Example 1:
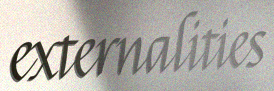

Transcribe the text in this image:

externalities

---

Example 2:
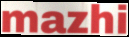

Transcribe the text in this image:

mazhi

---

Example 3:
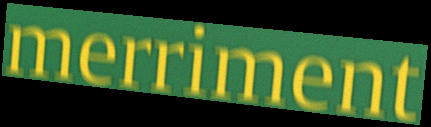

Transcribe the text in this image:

merriment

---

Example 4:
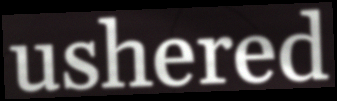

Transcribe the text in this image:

ushered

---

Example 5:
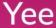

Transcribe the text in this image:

Yee